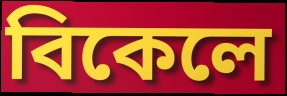
বিকেলে